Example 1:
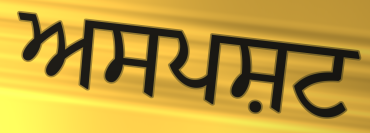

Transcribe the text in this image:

ਅਸਪਸ਼ਟ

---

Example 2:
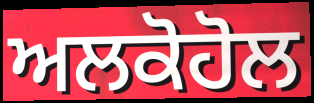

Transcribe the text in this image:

ਅਲਕੋਹੋਲ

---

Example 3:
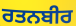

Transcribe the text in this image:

ਰਤਨਬੀਰ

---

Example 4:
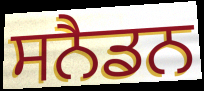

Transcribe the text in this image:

ਸਨੈਡਨ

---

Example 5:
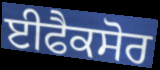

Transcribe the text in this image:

ਈਫੈਕਸੋਰ